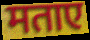
मताए